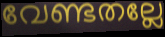
വേണ്ടതല്ലേ